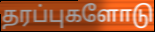
தரப்புகளோடு